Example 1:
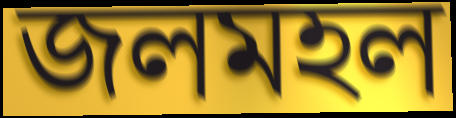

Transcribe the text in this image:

জলমহল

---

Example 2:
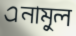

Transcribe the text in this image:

এনামুল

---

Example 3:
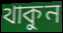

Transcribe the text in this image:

থাকুন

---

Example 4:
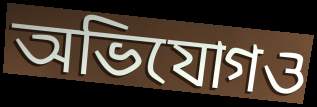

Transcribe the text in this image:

অভিযোগও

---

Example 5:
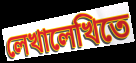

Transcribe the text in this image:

লেখালেখিতে